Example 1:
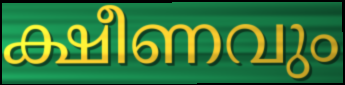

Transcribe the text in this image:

ക്ഷീണവും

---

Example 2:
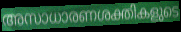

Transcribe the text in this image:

അസാധാരണശക്തികളുടെ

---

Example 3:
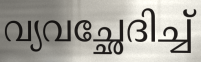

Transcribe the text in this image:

വ്യവച്ഛേദിച്ച്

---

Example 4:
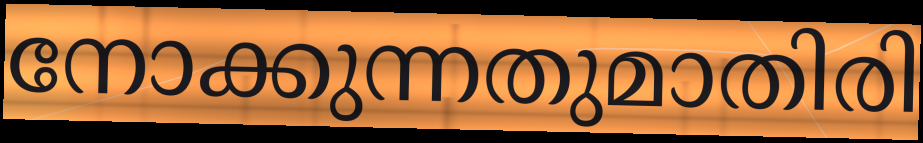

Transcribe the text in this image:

നോക്കുന്നതുമാതിരി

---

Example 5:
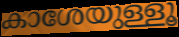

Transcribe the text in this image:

കാശേയുള്ളൂ